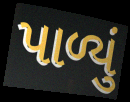
પાળ્યું